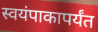
स्वयंपाकापर्यंत